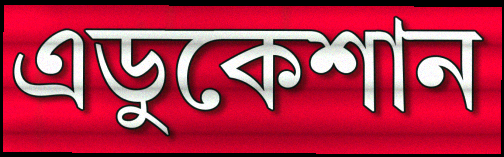
এডুকেশান